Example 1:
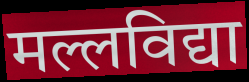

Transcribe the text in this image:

मल्लविद्या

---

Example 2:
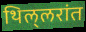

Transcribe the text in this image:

थिल्लरांत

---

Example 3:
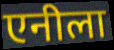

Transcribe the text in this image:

एनीला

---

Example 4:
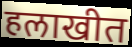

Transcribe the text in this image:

हलाखीत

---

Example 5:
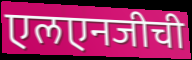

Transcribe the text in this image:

एलएनजीची